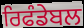
ਰਿਫੰਡੇਬਲ